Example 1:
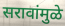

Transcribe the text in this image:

सरावांमुळे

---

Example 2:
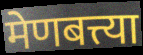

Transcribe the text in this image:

मेणबत्त्या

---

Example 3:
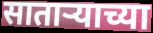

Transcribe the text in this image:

साताऱ्याच्या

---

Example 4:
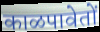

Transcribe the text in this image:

काळपावेतों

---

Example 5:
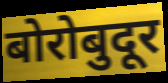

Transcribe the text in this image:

बोरोबुदूर